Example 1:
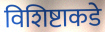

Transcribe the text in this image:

विशिष्टाकडे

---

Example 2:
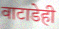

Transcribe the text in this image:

वाटाडेही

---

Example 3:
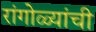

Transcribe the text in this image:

रांगोळ्यांची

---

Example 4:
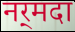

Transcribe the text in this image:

नर्मदा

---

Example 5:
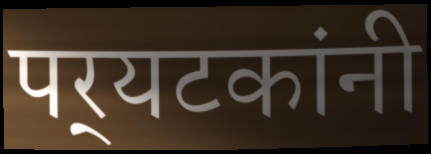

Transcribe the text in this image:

पर्यटकांनी